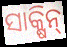
ସାକ୍ଷିନ୍